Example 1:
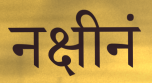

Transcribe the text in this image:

नक्षीनं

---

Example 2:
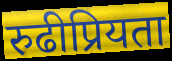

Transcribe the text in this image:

रुढीप्रियता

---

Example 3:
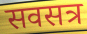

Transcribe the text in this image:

सवसत्र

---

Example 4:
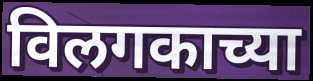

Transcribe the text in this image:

विलगकाच्या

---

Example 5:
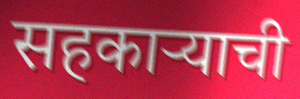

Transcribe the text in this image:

सहकाऱ्याची